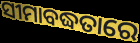
ସୀମାବଦ୍ଧତାରେ